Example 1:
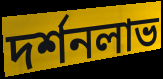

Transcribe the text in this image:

দর্শনলাভ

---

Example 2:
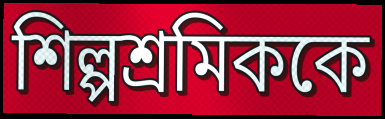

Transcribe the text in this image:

শিল্পশ্রমিককে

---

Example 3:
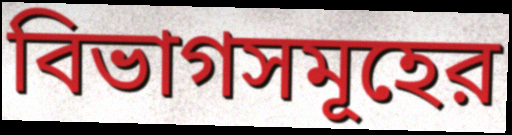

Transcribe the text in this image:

বিভাগসমূহের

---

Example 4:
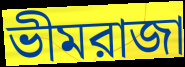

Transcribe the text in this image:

ভীমরাজা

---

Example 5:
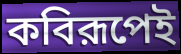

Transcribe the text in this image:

কবিরূপেই